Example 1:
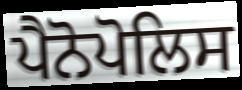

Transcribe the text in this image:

ਪੈਨੋਪੋਲਿਸ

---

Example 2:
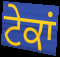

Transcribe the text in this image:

ਟੇਕਾਂ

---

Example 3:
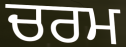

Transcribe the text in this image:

ਚਰਮ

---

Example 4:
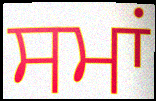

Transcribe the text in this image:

ਸਮਾਂ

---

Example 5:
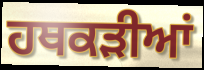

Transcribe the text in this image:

ਹਥਕੜੀਆਂ